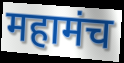
महामंच